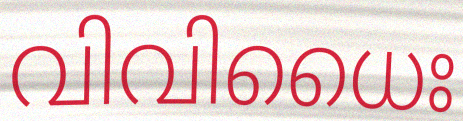
വിവിധൈഃ